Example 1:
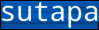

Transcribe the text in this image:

sutapa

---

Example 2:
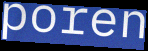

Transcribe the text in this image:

poren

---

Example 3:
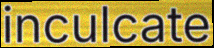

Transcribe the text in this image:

inculcate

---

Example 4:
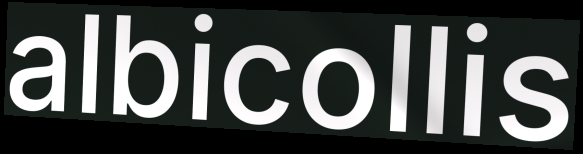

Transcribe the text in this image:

albicollis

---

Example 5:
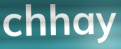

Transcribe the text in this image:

chhay